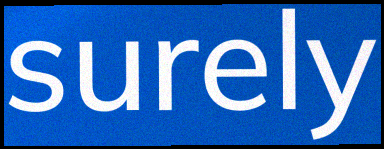
surely